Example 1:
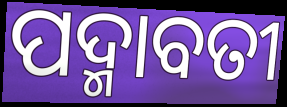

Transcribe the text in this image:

ପଦ୍ମାବତୀ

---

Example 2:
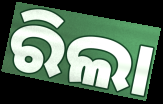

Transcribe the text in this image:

ରିଲା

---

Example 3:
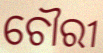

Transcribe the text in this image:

ଚୌରୀ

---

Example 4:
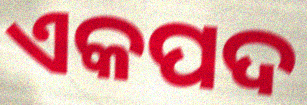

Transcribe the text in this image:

ଏକପଦ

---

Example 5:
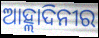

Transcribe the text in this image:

ଆହ୍ଲାଦିନୀର